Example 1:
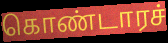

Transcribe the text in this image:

கொண்டாரச்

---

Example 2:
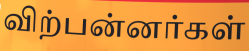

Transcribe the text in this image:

விற்பன்னர்கள்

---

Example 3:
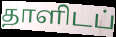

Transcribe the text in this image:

தாளிடப்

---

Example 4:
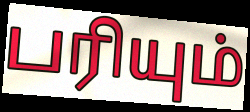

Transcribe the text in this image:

பரியும்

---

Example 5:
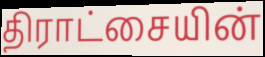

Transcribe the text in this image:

திராட்சையின்